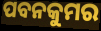
ପବନକୁମର